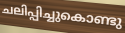
ചലിപ്പിച്ചുകൊണ്ടു